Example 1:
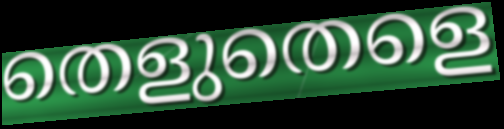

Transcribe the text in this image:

തെളുതെളെ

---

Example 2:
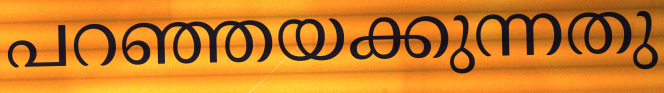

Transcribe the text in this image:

പറഞ്ഞയക്കുന്നതു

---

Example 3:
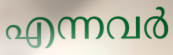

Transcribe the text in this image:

എന്നവർ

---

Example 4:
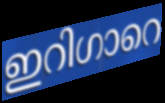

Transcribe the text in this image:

ഇറിഗാറെ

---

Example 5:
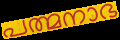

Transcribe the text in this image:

പത്മനാഭ